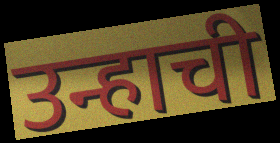
उन्हाची